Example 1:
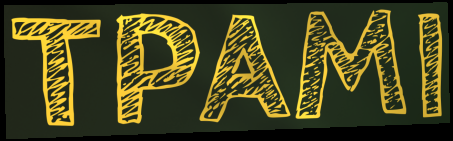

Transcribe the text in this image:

TPAMI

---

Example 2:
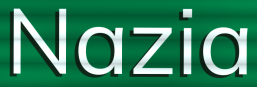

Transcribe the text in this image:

Nazia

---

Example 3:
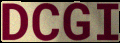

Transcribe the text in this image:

DCGI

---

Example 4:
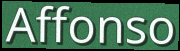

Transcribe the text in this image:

Affonso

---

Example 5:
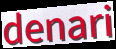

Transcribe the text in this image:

denari